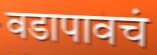
वडापावचं